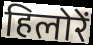
हिलोरें